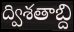
ద్విశతాబ్ది